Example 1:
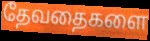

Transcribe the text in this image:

தேவதைகளை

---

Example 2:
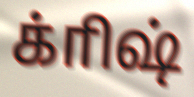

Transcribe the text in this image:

க்ரிஷ்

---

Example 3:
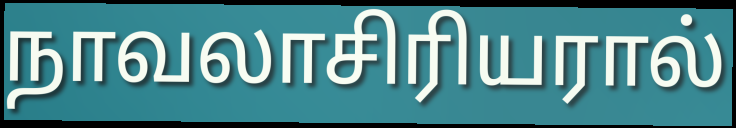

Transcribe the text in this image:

நாவலாசிரியரால்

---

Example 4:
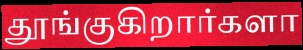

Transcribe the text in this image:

தூங்குகிறார்களா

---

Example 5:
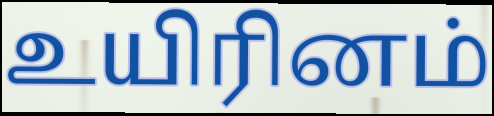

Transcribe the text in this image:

உயிரினம்